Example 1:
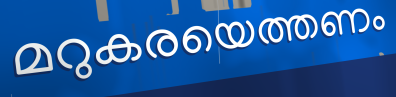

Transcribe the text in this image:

മറുകരയെത്തണം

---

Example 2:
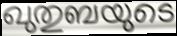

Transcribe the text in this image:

ഖുതുബയുടെ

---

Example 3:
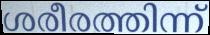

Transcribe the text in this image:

ശരീരത്തിന്ന്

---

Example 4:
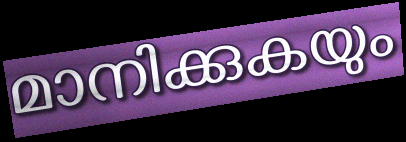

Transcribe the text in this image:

മാനിക്കുകയും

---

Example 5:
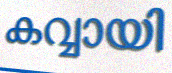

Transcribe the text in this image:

കവ്വായി